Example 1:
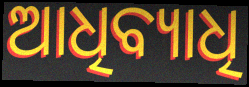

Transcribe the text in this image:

ଆଧିବ୍ୟାଧି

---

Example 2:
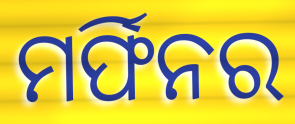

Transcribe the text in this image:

ମର୍ଫିନର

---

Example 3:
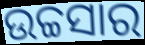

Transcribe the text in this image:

ଉଚ୍ଚସାର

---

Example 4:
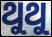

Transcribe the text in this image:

ଥୁଥୁ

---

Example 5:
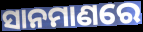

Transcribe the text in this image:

ସାନମାଣରେ